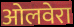
ओलवेरा